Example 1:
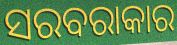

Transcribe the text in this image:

ସରବରାକାର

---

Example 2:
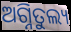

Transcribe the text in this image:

ଅଗ୍ନିତୁଲ୍ୟ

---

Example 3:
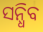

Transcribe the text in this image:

ସନ୍ଧିବ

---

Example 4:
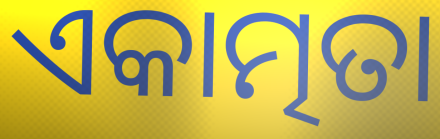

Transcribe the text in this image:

ଏକାତ୍ମତା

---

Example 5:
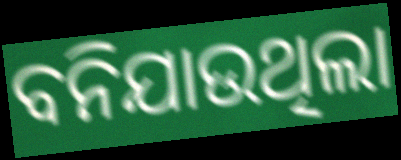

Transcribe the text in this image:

ବନିଯାଉଥିଲା